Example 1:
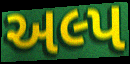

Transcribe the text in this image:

અલ્પ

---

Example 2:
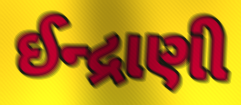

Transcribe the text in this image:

ઈન્દ્રાણી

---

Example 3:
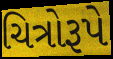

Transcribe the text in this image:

ચિત્રોરૂપે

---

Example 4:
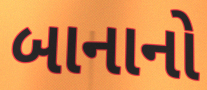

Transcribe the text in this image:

બાનાનો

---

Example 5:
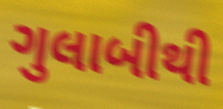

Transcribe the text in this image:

ગુલાબીથી